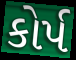
કોર્પ